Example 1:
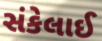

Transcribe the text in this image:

સંકેલાઈ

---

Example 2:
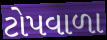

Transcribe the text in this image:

ટોપવાળા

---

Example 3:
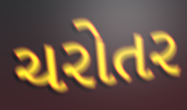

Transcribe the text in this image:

ચરોતર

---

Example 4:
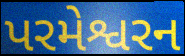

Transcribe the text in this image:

પરમેશ્વરન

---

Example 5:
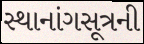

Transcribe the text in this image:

સ્થાનાંગસૂત્રની